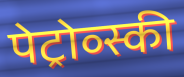
पेट्रोव्स्की